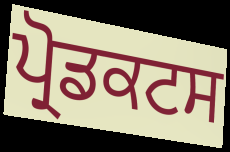
ਪ੍ਰੋਡਕਟਸ